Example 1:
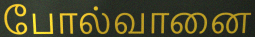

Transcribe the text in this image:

போல்வானை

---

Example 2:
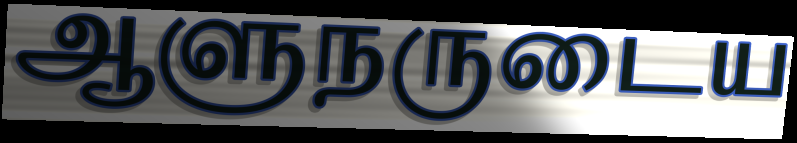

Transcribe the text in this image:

ஆளுநருடைய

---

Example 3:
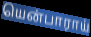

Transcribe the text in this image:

யென்பாராய்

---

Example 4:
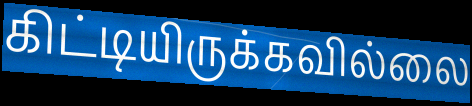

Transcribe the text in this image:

கிட்டியிருக்கவில்லை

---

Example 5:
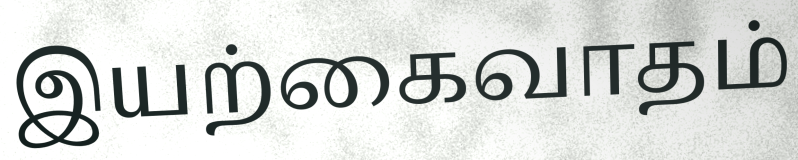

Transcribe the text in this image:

இயற்கைவாதம்